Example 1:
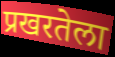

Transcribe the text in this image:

प्रखरतेला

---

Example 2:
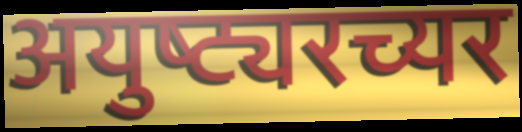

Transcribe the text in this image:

अयुष्ट्यरच्यर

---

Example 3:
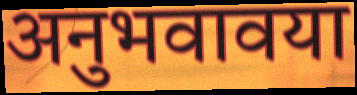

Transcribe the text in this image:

अनुभवावया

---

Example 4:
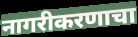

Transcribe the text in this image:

नागरीकरणाचा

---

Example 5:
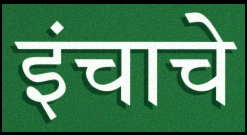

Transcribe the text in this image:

इंचाचे